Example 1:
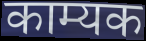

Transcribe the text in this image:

काम्यक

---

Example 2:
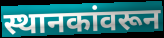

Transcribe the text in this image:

स्थानकांवरून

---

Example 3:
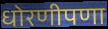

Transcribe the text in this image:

धोरणीपणा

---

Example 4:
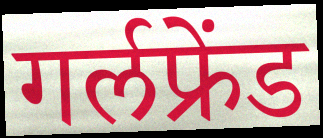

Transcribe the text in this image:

गर्लफ्रेंड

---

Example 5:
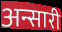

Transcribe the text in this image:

अन्सारी